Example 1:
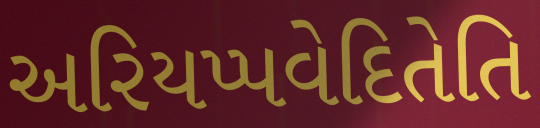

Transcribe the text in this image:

અરિયપ્પવેદિતેતિ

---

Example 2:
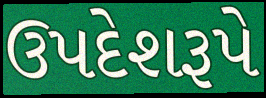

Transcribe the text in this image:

ઉપદેશરૂપે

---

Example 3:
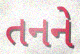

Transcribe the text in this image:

તનને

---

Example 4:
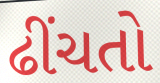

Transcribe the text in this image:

ઢીંચતો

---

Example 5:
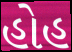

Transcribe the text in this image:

હોહ